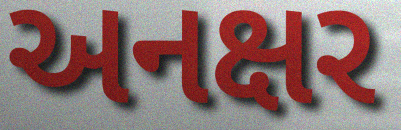
અનક્ષર